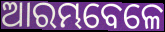
ଆରମ୍ଭବେଳେ